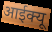
आईक्यू